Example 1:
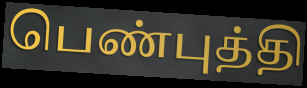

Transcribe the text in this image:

பெண்புத்தி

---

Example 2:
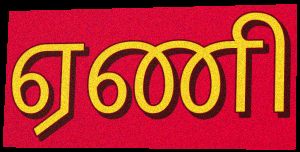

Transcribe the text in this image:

ஏணி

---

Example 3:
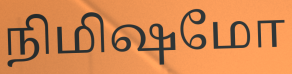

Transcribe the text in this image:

நிமிஷமோ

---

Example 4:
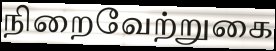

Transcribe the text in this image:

நிறைவேற்றுகை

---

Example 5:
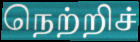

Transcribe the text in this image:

நெற்றிச்